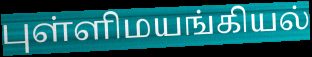
புள்ளிமயங்கியல்